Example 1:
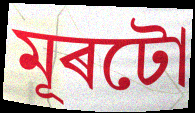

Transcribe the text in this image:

মূৰটো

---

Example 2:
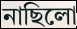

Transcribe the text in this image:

নাছিলো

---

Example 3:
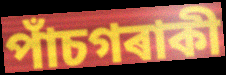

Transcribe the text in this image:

পাঁচগৰাকী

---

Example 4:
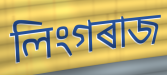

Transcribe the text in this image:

লিংগৰাজ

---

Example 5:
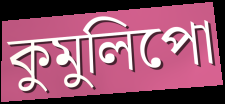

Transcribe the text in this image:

কুমুলিপো